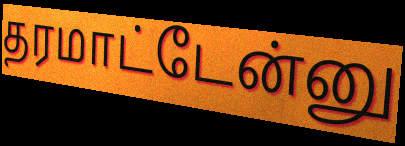
தரமாட்டேன்னு